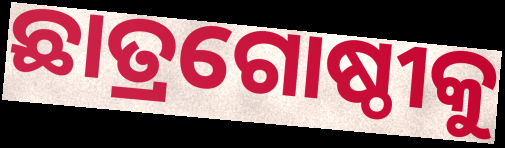
ଛାତ୍ରଗୋଷ୍ଠୀକୁ